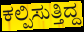
ಕಲ್ಪಿಸುತ್ತಿದ್ದ